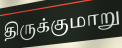
திருக்குமாறு